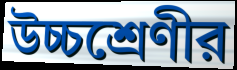
উচ্চশ্রেণীর